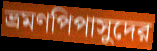
ভ্রমণপিপাসুদের